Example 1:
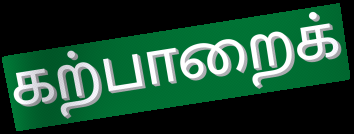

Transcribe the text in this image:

கற்பாறைக்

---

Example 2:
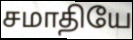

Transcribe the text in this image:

சமாதியே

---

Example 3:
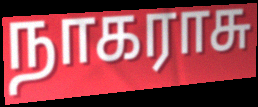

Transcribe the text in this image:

நாகராசு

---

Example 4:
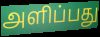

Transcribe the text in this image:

அளிப்பது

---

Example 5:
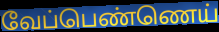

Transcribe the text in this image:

வேப்பெண்ணெய்